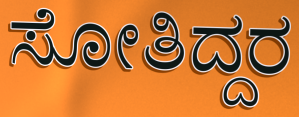
ಸೋತಿದ್ದರ